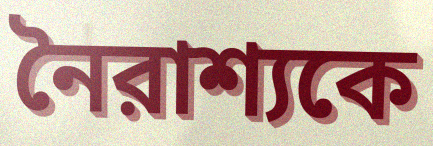
নৈরাশ্যকে